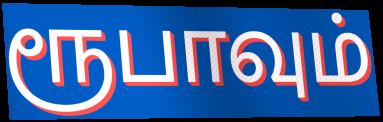
ரூபாவும்